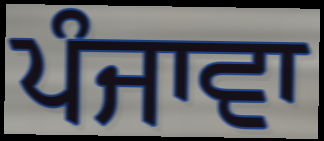
ਪੰਜਾਵਾ